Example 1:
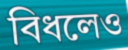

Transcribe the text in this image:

বিধলেও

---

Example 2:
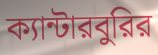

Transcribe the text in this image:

ক্যান্টারবুরির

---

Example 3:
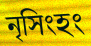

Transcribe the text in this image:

নৃসিংহং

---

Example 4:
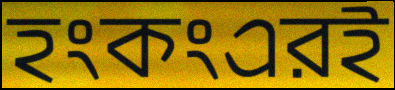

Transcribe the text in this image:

হংকংএরই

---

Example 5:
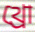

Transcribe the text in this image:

থ্রো